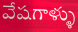
వేషగాళ్ళు